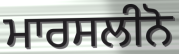
ਮਾਰਸਲੀਨੋ